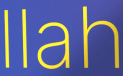
Ilah